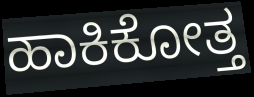
ಹಾಕಿಕೋತ್ತ